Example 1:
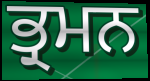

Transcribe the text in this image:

ਭ੍ਰਮਨ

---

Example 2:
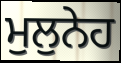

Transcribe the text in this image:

ਮੁਲੁਨੇਹ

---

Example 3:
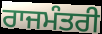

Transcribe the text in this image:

ਰਾਜਮੰਤਰੀ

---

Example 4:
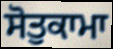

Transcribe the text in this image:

ਸੋਤੁਕਾਮਾ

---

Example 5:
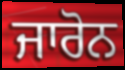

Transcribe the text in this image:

ਜਾਰੋਨ